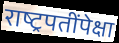
राष्ट्रपतींपेक्षा